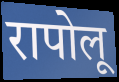
रापोलू